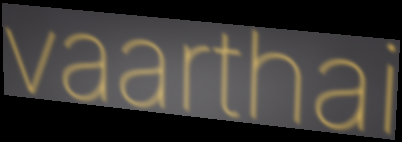
vaarthai